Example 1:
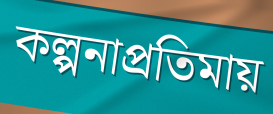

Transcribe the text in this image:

কল্পনাপ্রতিমায়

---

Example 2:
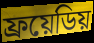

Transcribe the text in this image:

ফ্রয়েডিয়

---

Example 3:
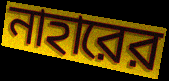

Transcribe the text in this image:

নাহারের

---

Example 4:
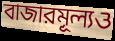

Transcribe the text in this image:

বাজারমূল্যও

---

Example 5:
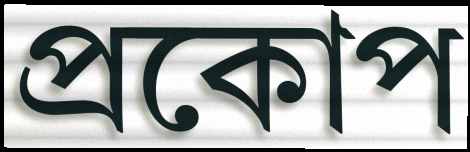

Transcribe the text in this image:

প্রকোপ